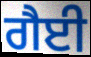
ਗੈਈ